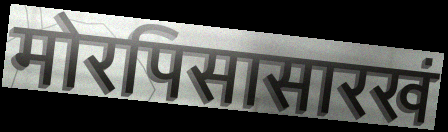
मोरपिसासारखं